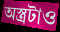
অস্ত্রটাও